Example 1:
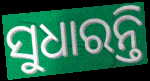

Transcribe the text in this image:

ସୁଧାରନ୍ତି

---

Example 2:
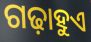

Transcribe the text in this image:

ଗଢ଼ାହୁଏ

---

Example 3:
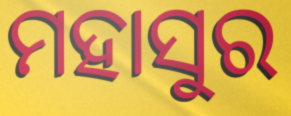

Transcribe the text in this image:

ମହାସୁର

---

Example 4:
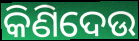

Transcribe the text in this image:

କିଣିଦେଉ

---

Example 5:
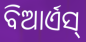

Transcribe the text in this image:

ବିଆର୍ଏସ୍